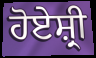
ਹੋਏਸ਼੍ਰੀ